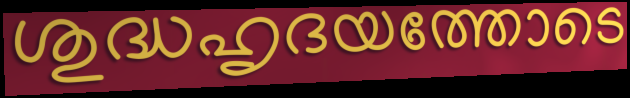
ശുദ്ധഹൃദയത്തോടെ